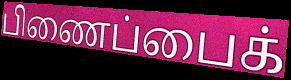
பிணைப்பைக்